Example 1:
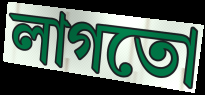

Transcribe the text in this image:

লাগতো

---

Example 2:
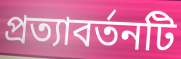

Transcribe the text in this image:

প্রত্যাবর্তনটি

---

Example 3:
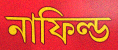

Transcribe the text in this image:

নাফিল্ড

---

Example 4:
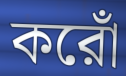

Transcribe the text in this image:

করোঁ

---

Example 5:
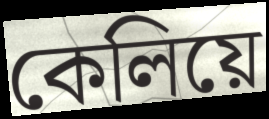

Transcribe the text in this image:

কেলিয়ে